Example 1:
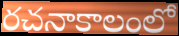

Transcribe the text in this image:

రచనాకాలంలో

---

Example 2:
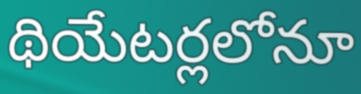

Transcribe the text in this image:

థియేటర్లలోనూ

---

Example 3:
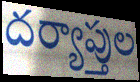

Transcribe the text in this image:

దర్యాప్తుల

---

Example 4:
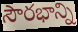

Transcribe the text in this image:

సౌరభాన్ని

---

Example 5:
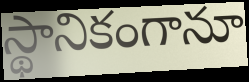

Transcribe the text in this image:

స్థానికంగానూ